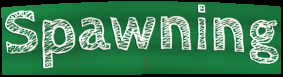
Spawning